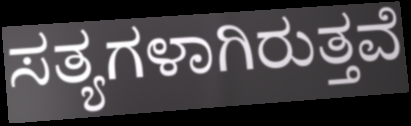
ಸತ್ಯಗಳಾಗಿರುತ್ತವೆ